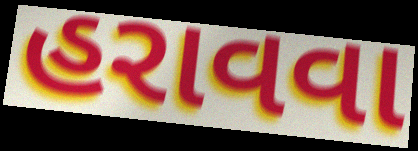
હરાવવા